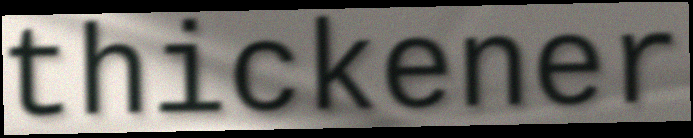
thickener